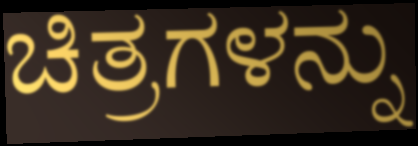
ಚಿತ್ರಗಳನ್ನು